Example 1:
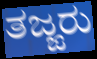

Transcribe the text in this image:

ತಜ್ಙರು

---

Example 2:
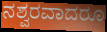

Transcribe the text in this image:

ನಶ್ವರವಾದರೂ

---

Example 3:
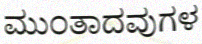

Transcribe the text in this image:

ಮುಂತಾದವುಗಳ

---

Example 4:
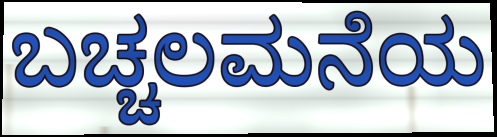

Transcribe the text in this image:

ಬಚ್ಚಲಮನೆಯ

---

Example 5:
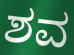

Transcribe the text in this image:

ಶವ